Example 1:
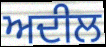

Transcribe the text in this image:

ਅਦੀਲ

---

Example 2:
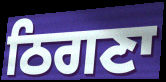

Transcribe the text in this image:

ਠਿਗਣਾ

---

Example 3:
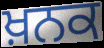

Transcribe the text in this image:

ਖ਼ਨਕ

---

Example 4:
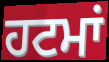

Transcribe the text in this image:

ਹਟਮਾਂ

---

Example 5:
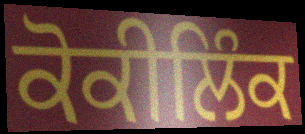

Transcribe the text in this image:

ਕੋਕੀਲਿੰਕ